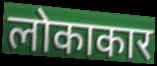
लोकाकार